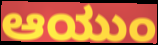
ಆಯುಂ